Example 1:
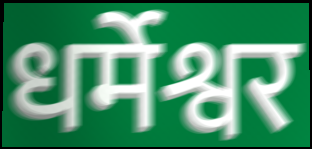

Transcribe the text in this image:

धर्मेश्वर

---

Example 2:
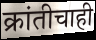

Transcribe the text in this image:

क्रांतीचाही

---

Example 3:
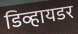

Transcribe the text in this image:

डिव्हायडर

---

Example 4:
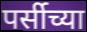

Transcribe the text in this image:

पर्सीच्या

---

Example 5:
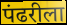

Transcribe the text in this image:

पंढरीला